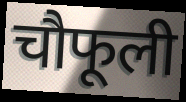
चौफूली